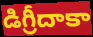
డిగ్రీదాకా